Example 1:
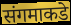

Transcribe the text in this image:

संगमाकडे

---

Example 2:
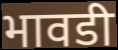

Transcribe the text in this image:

भावडी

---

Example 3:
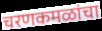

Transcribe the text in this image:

चरणकमळांचा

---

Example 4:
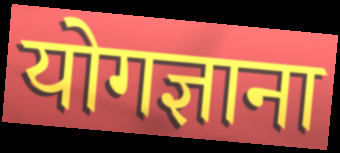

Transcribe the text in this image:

योगज्ञाना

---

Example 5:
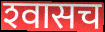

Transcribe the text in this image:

श्‍वासच